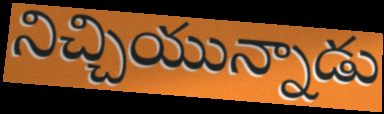
నిచ్చియున్నాడు